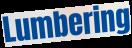
Lumbering